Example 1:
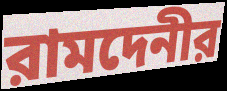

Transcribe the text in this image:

রামদেনীর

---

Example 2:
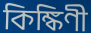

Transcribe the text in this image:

কিঙ্কিণী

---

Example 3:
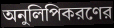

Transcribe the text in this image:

অনুলিপিকরণের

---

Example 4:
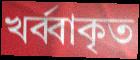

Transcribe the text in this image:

খর্ব্বাকৃত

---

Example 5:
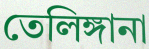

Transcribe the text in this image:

তেলিঙ্গানা